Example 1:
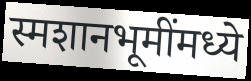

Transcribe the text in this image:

स्मशानभूमींमध्ये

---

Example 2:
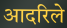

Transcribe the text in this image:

आदरिले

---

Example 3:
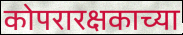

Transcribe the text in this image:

कोपरारक्षकाच्या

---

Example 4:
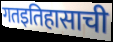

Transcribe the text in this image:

गतइतिहासाची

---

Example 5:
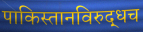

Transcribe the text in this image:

पाकिस्तानविरुद्धच